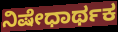
ನಿಷೇಧಾರ್ಥಕ